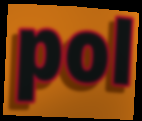
pol